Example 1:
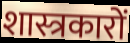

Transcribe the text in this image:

शास्त्रकारों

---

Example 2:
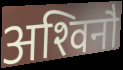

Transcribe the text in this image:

अश्विनौ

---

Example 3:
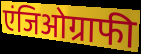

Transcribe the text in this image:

एंजिओग्राफी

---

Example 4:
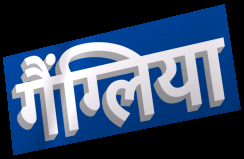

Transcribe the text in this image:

गैंग्लिया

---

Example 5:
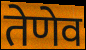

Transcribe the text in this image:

तेणेव